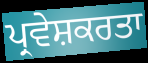
ਪ੍ਰਵੇਸ਼ਕਰਤਾ